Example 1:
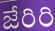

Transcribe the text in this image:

జేరిరి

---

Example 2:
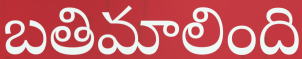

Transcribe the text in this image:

బతిమాలింది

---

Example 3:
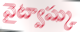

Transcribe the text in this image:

వైట్వాష్కు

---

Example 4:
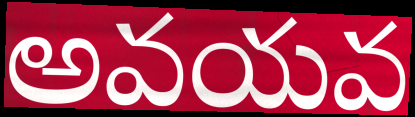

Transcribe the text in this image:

అవయవ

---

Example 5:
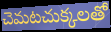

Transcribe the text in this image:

చెమటచుక్కలతో